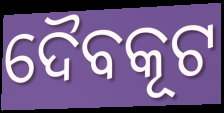
ଦୈବକୂଟ